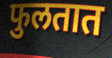
फुलतात